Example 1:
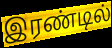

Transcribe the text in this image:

இரண்டில்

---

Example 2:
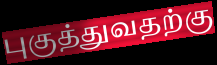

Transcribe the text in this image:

புகுத்துவதற்கு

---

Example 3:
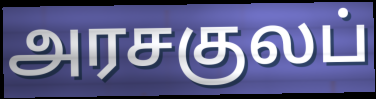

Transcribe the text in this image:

அரசகுலப்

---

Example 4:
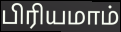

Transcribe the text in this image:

பிரியமாம்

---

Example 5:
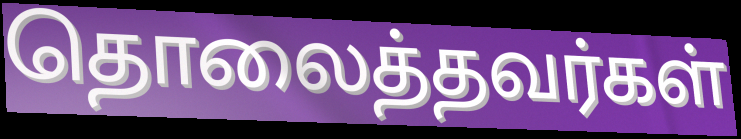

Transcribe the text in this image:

தொலைத்தவர்கள்